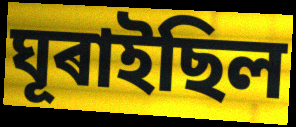
ঘূৰাইছিল